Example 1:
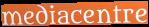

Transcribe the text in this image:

mediacentre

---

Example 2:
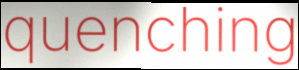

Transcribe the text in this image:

quenching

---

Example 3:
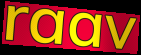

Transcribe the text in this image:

raav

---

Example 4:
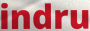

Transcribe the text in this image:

indru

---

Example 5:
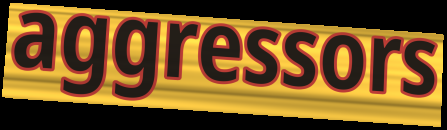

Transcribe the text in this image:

aggressors